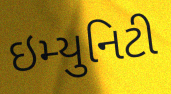
ઇમ્યુનિટી